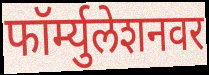
फॉर्म्युलेशनवर